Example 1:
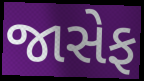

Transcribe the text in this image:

જાસેફ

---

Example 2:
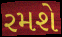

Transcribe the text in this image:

રમશે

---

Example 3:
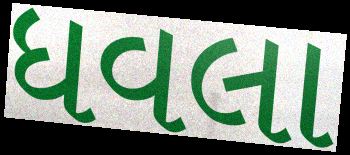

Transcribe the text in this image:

ધવલા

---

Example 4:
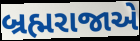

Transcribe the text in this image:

બ્રહ્મરાજાએ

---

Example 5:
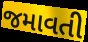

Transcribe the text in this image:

જમાવતી